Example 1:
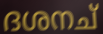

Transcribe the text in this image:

ദശനച്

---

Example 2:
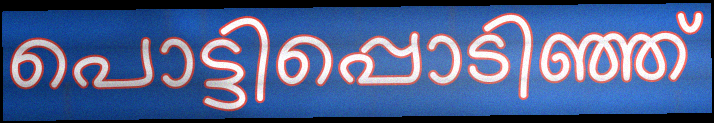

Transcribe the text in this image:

പൊട്ടിപ്പൊടിഞ്ഞ്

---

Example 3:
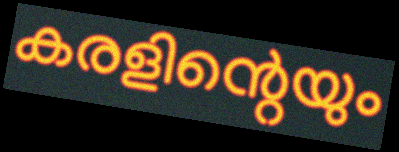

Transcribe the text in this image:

കരളിന്റെയും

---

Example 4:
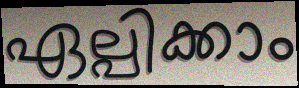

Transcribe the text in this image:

ഏല്പിക്കാം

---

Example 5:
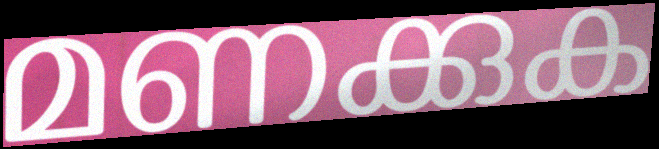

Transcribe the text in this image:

മണക്കുക